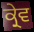
ਕ੍ਰੇਵ